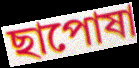
ছাপোষা